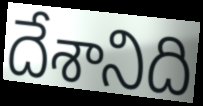
దేశానిది